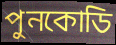
পুনকোডি